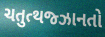
ચતુત્થજ્ઝાનતો